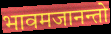
भावमजानन्तो